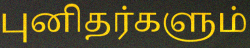
புனிதர்களும்